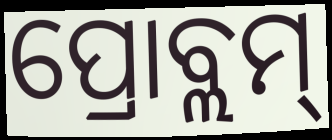
ପ୍ରୋବ୍ଲମ୍